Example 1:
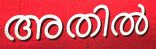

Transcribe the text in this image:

അതിൽ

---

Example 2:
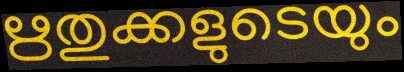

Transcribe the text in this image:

ഋതുക്കളുടെയും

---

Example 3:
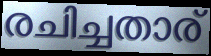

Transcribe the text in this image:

രചിച്ചതാര്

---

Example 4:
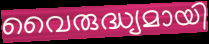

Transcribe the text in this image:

വൈരുദ്ധ്യമായി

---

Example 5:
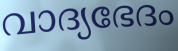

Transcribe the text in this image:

വാദ്യഭേദം